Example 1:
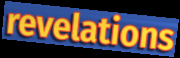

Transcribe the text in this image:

revelations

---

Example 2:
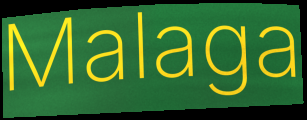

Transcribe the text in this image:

Malaga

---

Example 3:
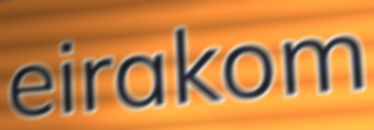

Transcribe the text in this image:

eirakom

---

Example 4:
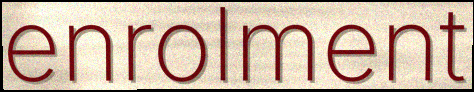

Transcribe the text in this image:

enrolment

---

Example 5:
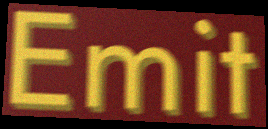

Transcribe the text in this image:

Emit